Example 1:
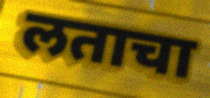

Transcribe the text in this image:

लताचा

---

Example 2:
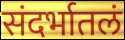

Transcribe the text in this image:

संदर्भातलं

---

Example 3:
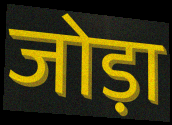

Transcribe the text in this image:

जोड़ा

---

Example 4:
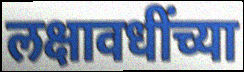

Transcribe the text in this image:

लक्षावधींच्या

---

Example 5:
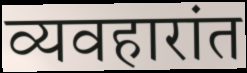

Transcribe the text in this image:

व्यवहारांत